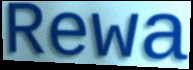
Rewa